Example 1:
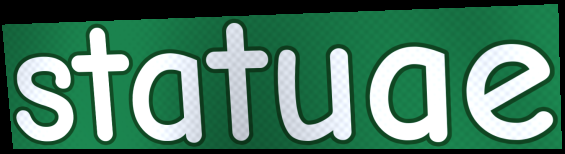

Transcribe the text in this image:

statuae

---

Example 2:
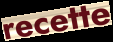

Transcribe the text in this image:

recette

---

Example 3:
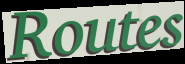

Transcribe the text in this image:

Routes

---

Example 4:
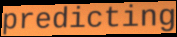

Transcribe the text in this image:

predicting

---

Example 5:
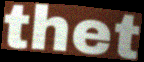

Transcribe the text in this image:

thet